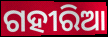
ଗହୀରିଆ